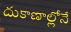
దుకాణాల్లోనే